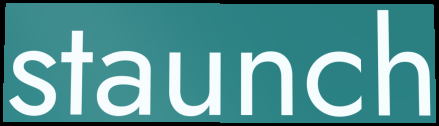
staunch